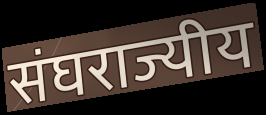
संघराज्यीय